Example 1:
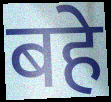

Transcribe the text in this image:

बहे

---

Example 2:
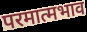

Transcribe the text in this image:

परमात्मभाव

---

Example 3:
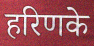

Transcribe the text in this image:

हरिणके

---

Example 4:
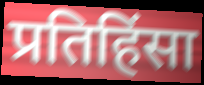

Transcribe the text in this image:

प्रतिहिंसा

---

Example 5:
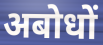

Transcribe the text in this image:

अबोधों